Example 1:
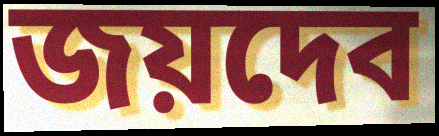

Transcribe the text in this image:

জয়দেব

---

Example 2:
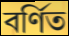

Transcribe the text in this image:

বর্ণিত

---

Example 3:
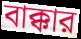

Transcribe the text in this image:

বাক্কার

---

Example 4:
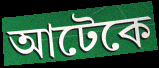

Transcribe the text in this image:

আটেকে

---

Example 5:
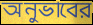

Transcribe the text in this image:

অনুভাবের